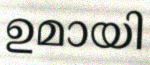
ഉമായി